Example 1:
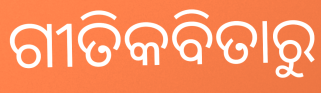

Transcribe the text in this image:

ଗୀତିକବିତାରୁ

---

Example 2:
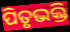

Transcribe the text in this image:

ପିତୃଭକ୍ତି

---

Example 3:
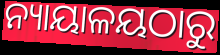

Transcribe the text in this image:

ନ୍ୟାୟାଳୟଠାରୁ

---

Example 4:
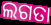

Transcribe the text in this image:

ଲଗତା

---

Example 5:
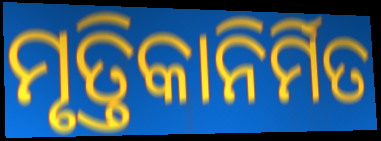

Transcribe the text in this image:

ମୃତ୍ତିକାନିର୍ମିତ